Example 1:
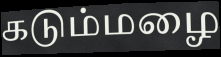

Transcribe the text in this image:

கடும்மழை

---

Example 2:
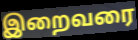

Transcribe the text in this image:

இறைவரை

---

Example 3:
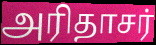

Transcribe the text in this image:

அரிதாசர்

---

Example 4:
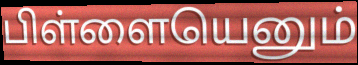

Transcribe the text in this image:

பிள்ளையெனும்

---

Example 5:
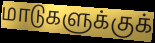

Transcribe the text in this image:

மாடுகளுக்குக்